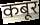
कबूर